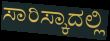
ಸಾರಿಸ್ಕಾದಲ್ಲಿ